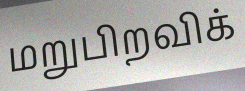
மறுபிறவிக்